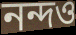
নন্দও